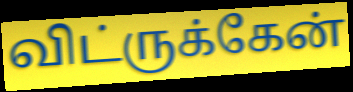
விட்ருக்கேன்